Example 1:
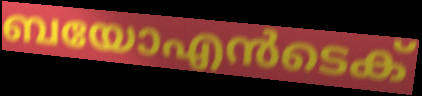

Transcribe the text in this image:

ബയോഎൻടെക്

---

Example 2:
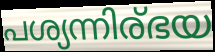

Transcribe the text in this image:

പശ്യന്നിര്ഭയ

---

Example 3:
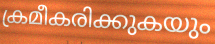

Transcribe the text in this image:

ക്രമീകരിക്കുകയും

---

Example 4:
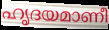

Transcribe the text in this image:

ഹൃദയമാണീ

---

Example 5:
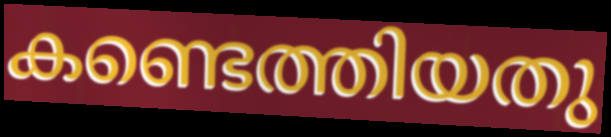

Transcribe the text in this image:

കണ്ടെത്തിയതു